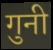
गुनी